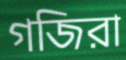
গজিরা